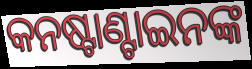
କନଷ୍ଟାଣ୍ଟାଇନଙ୍କ